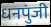
धनपुंजी